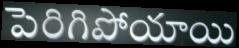
పెరిగిపోయాయి